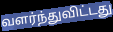
வளர்ந்துவிட்டது